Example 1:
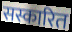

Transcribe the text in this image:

सस्कारित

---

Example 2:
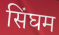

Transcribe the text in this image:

सिंघम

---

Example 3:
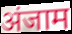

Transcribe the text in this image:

अंजाम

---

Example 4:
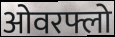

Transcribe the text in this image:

ओवरफ्लो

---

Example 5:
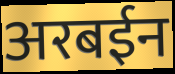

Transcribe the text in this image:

अरबईन